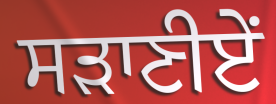
ਸੜਾਣੀਏਂ